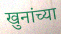
खुनांच्या